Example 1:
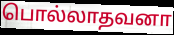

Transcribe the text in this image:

பொல்லாதவனா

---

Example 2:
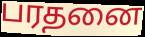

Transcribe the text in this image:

பரதனை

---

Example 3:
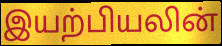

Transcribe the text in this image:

இயற்பியலின்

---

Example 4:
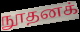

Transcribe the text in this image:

நூதனக்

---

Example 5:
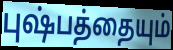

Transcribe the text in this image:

புஷ்பத்தையும்